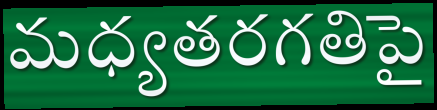
మధ్యతరగతిపై